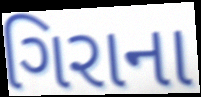
ગિરાના